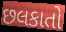
છલકાતો